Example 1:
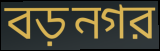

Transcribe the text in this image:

বড়নগর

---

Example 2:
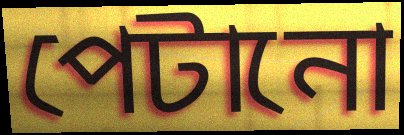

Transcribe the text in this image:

পেটানো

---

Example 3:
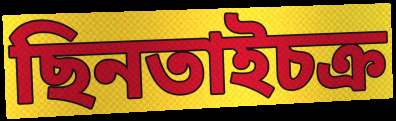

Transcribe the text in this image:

ছিনতাইচক্র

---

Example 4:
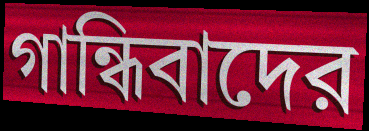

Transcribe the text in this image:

গান্ধিবাদের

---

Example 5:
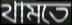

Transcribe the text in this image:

থামতে